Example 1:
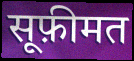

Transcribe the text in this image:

सूफ़ीमत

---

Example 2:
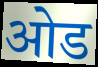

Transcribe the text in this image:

ओड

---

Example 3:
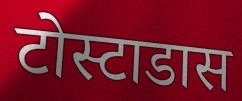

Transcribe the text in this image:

टोस्टाडास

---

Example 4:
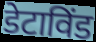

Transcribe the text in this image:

डेटाविंड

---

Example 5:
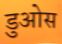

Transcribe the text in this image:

डुओस